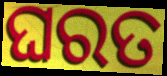
ଘରତ